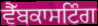
ਵੈੱਬਕਾਸਟਿੰਗ